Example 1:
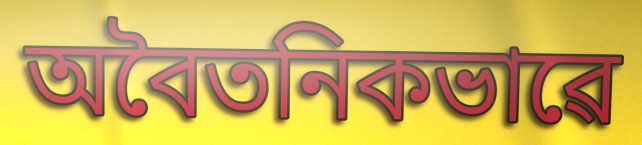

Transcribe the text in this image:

অবৈতনিকভাৱে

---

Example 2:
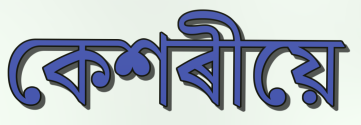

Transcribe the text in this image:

কেশৰীয়ে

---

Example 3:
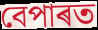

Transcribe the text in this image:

বেপাৰত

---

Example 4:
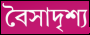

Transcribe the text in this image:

বৈসাদৃশ্য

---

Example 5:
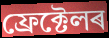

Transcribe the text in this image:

ফ্ৰেক্টেলৰ